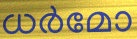
ധർമോ